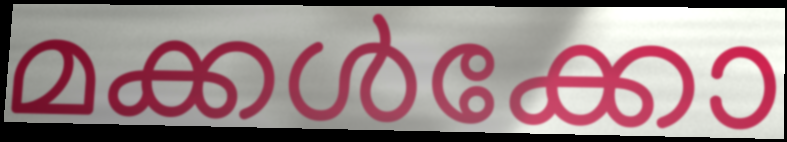
മക്കൾക്കോ